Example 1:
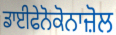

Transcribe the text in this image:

ਡਾਈਫੇਨੋਕੋਨਾਜ਼ੋਲ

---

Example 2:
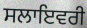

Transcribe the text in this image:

ਸਲਾਇਵਰੀ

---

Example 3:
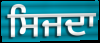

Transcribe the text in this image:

ਸਿਜਦਾ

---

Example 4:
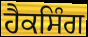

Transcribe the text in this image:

ਹੈਕਸਿੰਗ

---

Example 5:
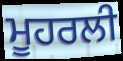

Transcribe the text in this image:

ਮੂਹਰਲੀ